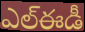
ఎల్ఈడీ